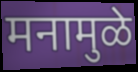
मनामुळे